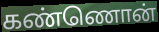
கண்ணொன்